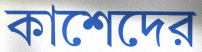
কাশেদের